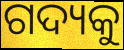
ଗଦ୍ୟକୁ